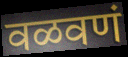
वळवणं